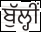
ਬੁੱਲ੍ਹੀਂ